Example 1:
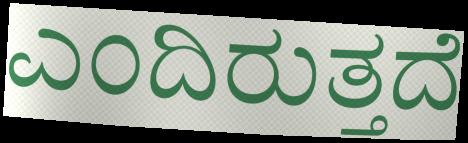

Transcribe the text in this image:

ಎಂದಿರುತ್ತದೆ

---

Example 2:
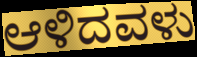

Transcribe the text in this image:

ಆಳಿದವಳು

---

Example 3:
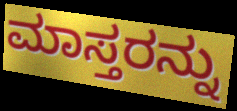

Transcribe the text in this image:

ಮಾಸ್ತರನ್ನು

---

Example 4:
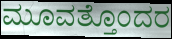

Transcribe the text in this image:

ಮೂವತ್ತೊಂದರ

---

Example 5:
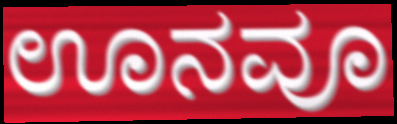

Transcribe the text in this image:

ಊನವೂ